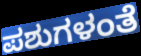
ಪಶುಗಳಂತೆ